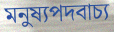
মনুষ্যপদবাচ্য